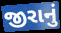
જીરાનું